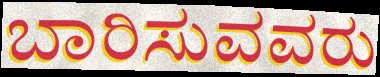
ಬಾರಿಸುವವರು